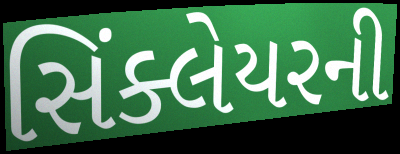
સિંક્લેયરની